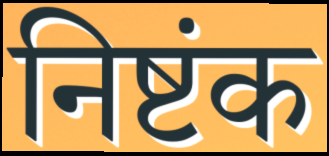
निष्टंक